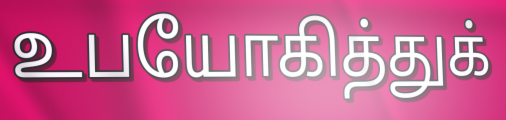
உபயோகித்துக்